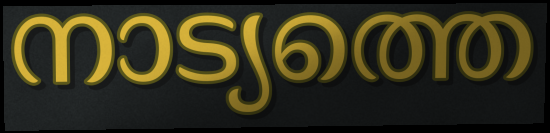
നാട്യത്തെ